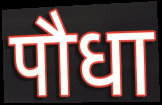
पौधा